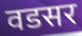
वडसर